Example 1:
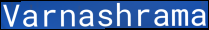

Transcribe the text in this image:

Varnashrama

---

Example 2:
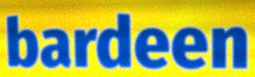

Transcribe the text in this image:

bardeen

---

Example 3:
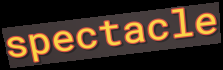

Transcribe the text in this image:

spectacle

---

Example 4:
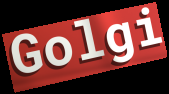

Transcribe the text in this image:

Golgi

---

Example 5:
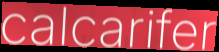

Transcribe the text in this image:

calcarifer